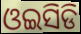
ଓଇସିଡି